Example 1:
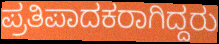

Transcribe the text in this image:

ಪ್ರತಿಪಾದಕರಾಗಿದ್ದರು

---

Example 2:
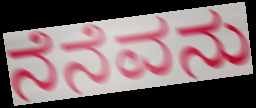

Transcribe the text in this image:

ನೆನೆವನು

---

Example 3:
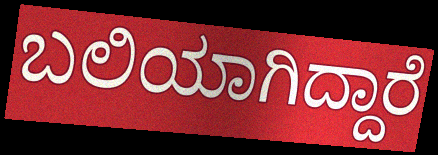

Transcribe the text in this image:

ಬಲಿಯಾಗಿದ್ದಾರೆ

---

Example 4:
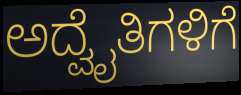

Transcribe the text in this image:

ಅದ್ವೈತಿಗಳಿಗೆ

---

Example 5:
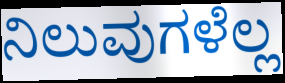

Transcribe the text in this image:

ನಿಲುವುಗಳೆಲ್ಲ